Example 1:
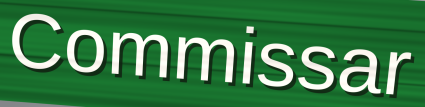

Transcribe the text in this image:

Commissar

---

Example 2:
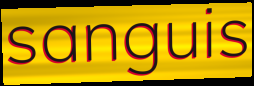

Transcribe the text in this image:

sanguis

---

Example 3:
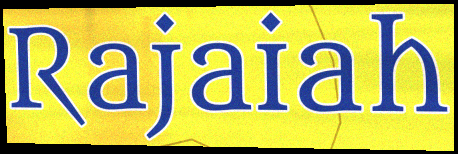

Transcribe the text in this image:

Rajaiah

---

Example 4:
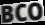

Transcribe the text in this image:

BCO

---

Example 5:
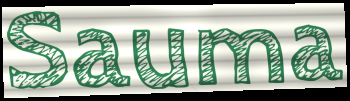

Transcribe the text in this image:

Sauma